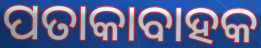
ପତାକାବାହକ